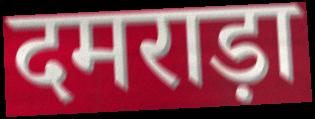
दमराड़ा